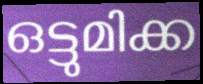
ഒട്ടുമിക്ക